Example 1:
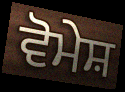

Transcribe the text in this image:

ਵੋਮੇਸ਼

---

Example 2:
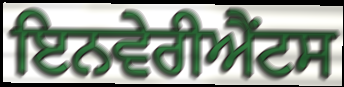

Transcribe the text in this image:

ਇਨਵੇਰੀਐਂਟਸ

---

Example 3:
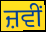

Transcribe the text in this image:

ਜ਼ਵੀਂ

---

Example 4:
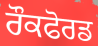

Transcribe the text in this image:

ਰੌਕਫੋਰਡ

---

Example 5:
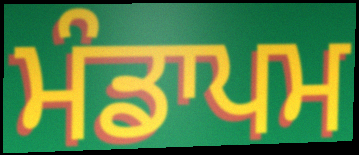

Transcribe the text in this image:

ਮੰਡਾਪਮ